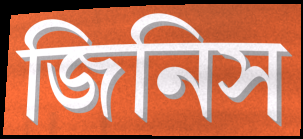
জিনিস